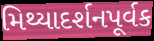
મિથ્યાદર્શનપૂર્વક